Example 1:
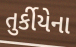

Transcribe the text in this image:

તુર્કીયેના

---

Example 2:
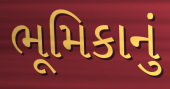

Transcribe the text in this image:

ભૂમિકાનું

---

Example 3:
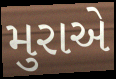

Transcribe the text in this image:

મુરાએ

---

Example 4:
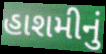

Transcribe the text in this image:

હાશમીનું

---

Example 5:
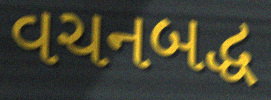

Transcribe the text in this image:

વચનબદ્ધ